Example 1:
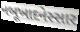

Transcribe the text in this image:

નબૂખાદનેસ્સાર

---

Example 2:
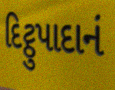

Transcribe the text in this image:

દિટ્ઠુપાદાનં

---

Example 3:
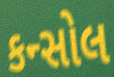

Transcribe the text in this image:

કન્સોલ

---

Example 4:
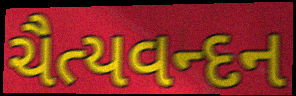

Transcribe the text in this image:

ચૈત્યવન્દન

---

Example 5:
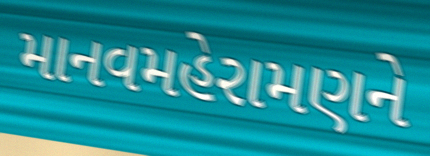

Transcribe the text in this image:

માનવમહેરામણને